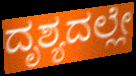
ದೃಶ್ಯದಲ್ಲೇ